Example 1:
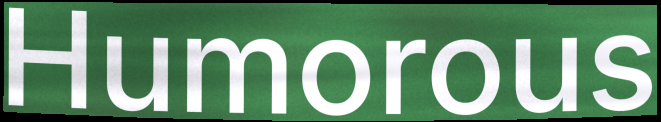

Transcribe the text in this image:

Humorous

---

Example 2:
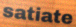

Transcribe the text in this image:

satiate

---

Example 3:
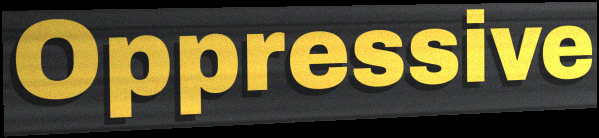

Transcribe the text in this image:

Oppressive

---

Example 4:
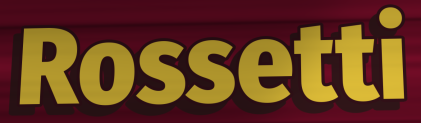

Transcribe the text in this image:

Rossetti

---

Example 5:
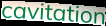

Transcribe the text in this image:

cavitation